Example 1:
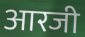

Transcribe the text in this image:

आरजी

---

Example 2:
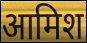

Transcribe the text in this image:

आमिश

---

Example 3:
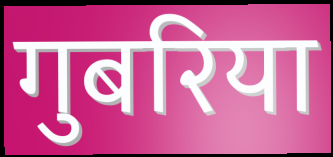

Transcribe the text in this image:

गुबरिया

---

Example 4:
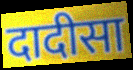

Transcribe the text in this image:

दादीसा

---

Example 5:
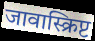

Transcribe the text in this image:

जावास्क्रिप्ट